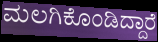
ಮಲಗಿಕೊಂಡಿದ್ದಾರೆ